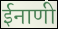
ईनाणी